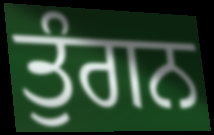
ਤੁੰਗਨ